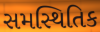
સમસ્થિતિક